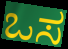
ಒಸ